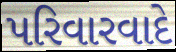
પરિવારવાદે